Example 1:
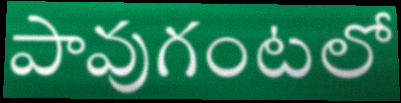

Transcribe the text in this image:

పావుగంటలో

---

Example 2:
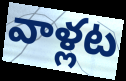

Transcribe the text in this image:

వాళ్లట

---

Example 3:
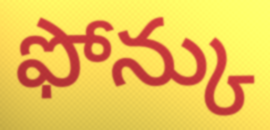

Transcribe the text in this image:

ఫోన్కు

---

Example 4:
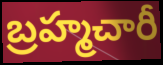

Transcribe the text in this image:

బ్రహ్మచారీ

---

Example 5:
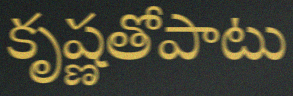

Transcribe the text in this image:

కృష్ణతోపాటు